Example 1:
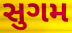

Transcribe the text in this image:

સુગમ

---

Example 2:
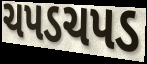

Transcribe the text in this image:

ચપડચપડ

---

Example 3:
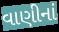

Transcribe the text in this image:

વાણીનાં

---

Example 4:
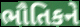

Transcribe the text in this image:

ભૌતિકને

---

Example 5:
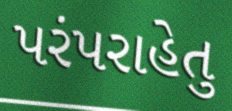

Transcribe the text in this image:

પરંપરાહેતુ